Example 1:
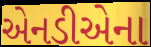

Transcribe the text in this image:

એનડીએના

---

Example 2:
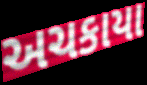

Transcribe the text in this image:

અચકાયા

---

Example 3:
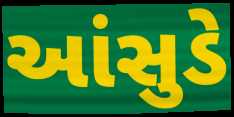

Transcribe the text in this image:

આંસુડે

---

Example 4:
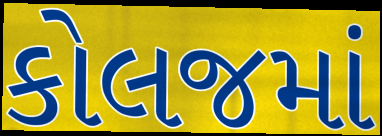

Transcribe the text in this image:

કોલજમાં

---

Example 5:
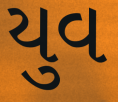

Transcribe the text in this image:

યુવ